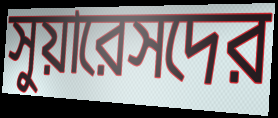
সুয়ারেসদের